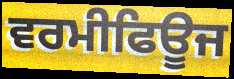
ਵਰਮੀਫਿਊਜ